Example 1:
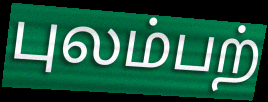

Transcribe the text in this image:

புலம்பற்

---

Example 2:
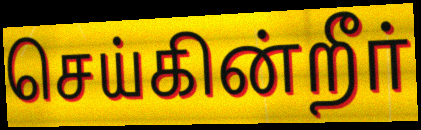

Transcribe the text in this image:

செய்கின்றீர்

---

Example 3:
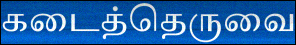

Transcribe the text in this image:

கடைத்தெருவை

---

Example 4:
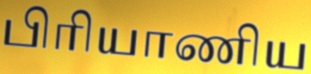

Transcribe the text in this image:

பிரியாணிய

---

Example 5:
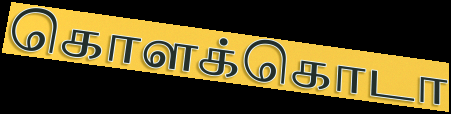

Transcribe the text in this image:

கொளக்கொடா